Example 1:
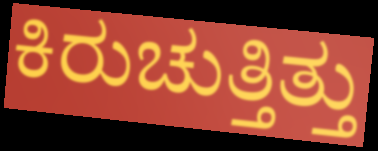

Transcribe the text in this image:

ಕಿರುಚುತ್ತಿತ್ತು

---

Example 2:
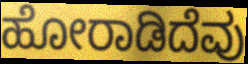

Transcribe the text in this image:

ಹೋರಾಡಿದೆವು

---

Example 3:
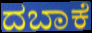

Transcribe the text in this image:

ದಬಾಕೆ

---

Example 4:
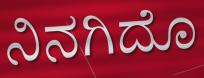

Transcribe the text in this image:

ನಿನಗಿದೊ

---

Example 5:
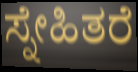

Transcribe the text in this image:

ಸ್ನೇಹಿತರೆ